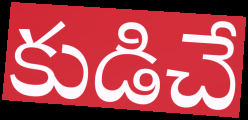
కుడిచే